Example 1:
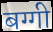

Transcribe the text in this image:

बग्गी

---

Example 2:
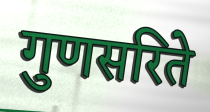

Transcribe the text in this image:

गुणसरिते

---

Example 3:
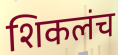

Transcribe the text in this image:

शिकलंच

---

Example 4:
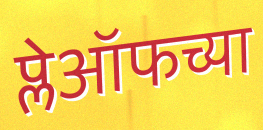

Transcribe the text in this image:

प्लेऑफच्या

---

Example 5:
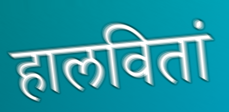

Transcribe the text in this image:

हालवितां